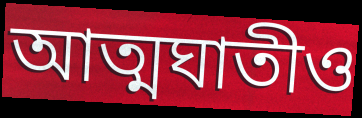
আত্মঘাতীও